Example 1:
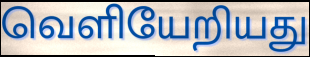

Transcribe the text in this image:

வெளியேறியது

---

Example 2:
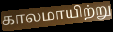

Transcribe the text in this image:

காலமாயிற்று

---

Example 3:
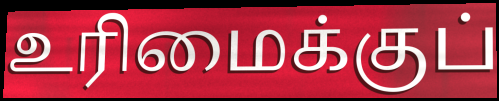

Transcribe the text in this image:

உரிமைக்குப்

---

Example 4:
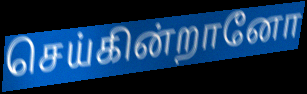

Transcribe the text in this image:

செய்கின்றானோ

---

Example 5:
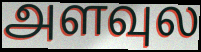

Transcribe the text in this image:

அளவுல